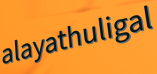
alayathuligal